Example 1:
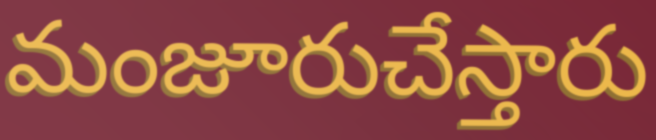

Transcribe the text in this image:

మంజూరుచేస్తారు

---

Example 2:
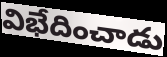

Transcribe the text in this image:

విభేదించాడు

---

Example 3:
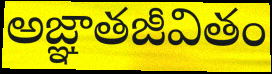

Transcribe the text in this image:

అజ్ఞాతజీవితం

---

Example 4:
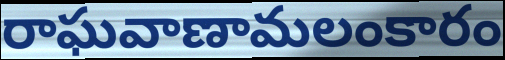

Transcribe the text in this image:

రాఘవాణామలంకారం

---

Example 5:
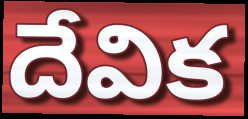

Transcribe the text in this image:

దేవిక